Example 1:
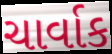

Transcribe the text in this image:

ચાર્વાક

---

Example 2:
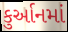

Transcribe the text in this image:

કુર્આનમાં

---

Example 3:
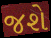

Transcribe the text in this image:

જશે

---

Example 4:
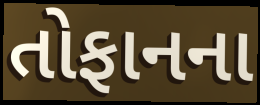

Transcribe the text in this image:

તોફાનના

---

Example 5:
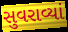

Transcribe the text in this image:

સુવરાવ્યાં